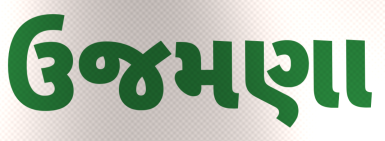
ઉજમણા